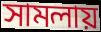
সামলায়